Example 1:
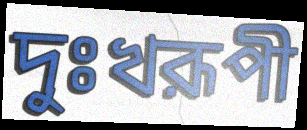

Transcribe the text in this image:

দুঃখরূপী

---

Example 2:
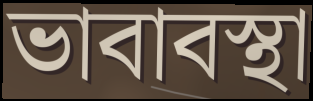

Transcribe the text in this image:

ভাবাবস্থা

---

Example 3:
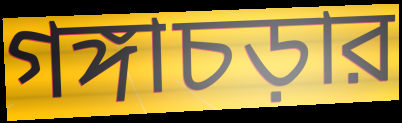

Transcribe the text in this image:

গঙ্গাচড়ার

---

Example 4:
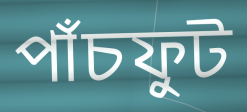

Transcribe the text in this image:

পাঁচফুট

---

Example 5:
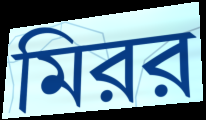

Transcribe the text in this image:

মিরর